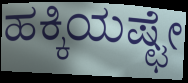
ಹಕ್ಕಿಯಷ್ಟೇ